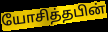
யோசித்தபின்